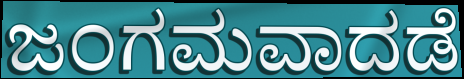
ಜಂಗಮವಾದಡೆ